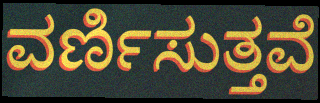
ವರ್ಣಿಸುತ್ತವೆ